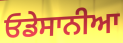
ਓਡੇਸਾਨੀਆ